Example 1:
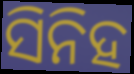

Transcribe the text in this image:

ସିନିହ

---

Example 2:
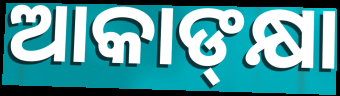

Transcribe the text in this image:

ଆକାଙ୍‍କ୍ଷା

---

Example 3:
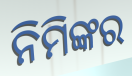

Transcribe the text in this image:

ନିମିଙ୍କର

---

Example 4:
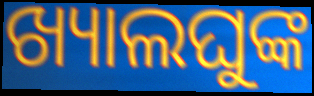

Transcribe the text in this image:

ଖ୍ୟାଲଘୁଙ୍କ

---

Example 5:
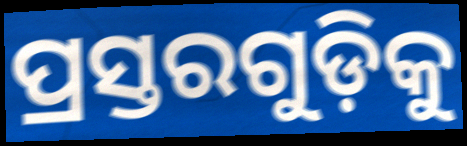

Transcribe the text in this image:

ପ୍ରସ୍ତରଗୁଡ଼ିକୁ